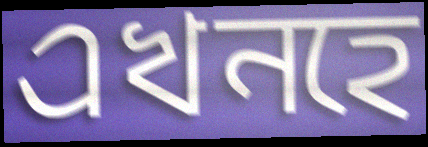
এখনহে